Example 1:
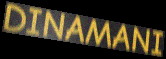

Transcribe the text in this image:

DINAMANI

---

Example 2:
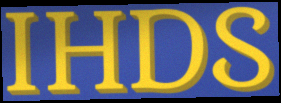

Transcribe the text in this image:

IHDS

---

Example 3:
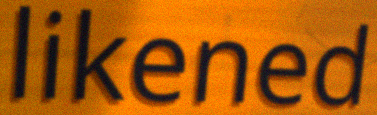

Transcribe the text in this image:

likened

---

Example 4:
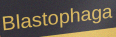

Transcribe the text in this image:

Blastophaga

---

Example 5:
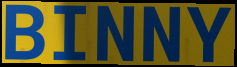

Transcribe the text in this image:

BINNY